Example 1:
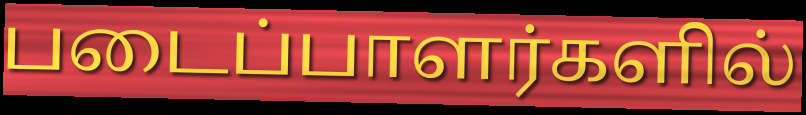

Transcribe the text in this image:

படைப்பாளர்களில்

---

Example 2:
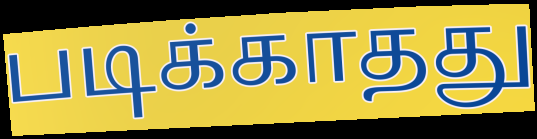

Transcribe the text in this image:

படிக்காதது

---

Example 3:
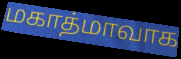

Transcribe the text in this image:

மகாத்மாவாக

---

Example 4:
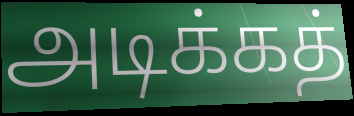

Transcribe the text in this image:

அடிக்கத்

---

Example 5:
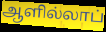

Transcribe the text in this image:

ஆளில்லாப்